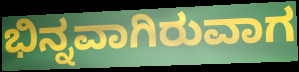
ಭಿನ್ನವಾಗಿರುವಾಗ